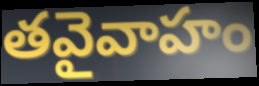
తవైవాహం